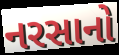
નરસાનો